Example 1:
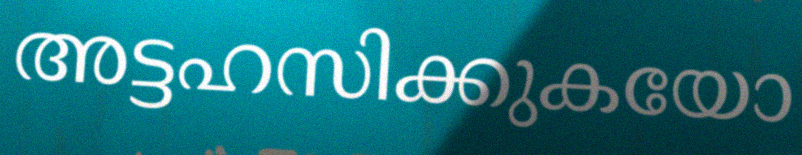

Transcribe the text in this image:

അട്ടഹസിക്കുകയോ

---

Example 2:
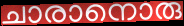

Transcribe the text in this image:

ചാരാനൊരു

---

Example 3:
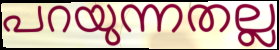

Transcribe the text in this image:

പറയുന്നതല്ല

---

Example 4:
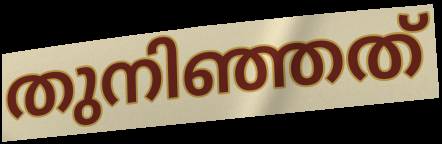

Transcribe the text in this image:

തുനിഞ്ഞത്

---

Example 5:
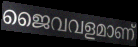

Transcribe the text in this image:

ജൈവവളമാണ്